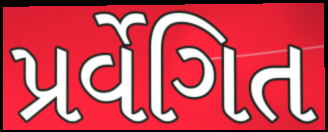
પ્રર્વેગિત